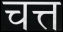
चत्त